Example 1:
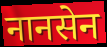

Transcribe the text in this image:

नानसेन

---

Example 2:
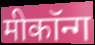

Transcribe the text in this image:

मीकॉन्ग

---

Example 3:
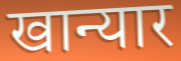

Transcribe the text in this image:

खान्यार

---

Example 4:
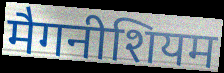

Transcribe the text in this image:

मैगनीशियम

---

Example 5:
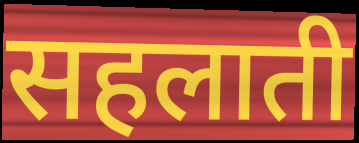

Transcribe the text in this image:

सहलाती